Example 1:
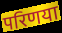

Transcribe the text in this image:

परिणया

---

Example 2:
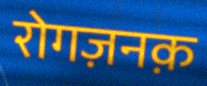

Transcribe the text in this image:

रोगज़नक़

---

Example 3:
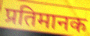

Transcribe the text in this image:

प्रतिमानक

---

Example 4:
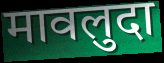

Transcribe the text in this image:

मावलुदा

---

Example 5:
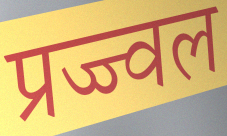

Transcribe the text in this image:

प्रज्ज्वल